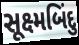
સૂક્ષ્મબિંદુ